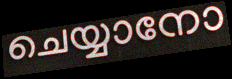
ചെയ്യാനോ